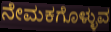
ನೇಮಕಗೊಳ್ಳುವ